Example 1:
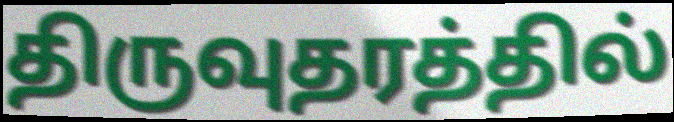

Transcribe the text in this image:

திருவுதரத்தில்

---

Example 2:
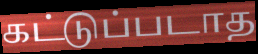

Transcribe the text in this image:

கட்டுப்படாத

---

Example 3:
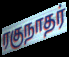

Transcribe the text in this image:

ரகுநாதர்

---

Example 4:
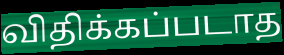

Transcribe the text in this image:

விதிக்கப்படாத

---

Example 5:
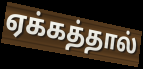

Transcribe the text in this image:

ஏக்கத்தால்